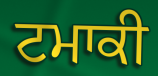
ਟਮਾਕੀ